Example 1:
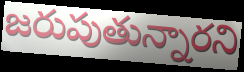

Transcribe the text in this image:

జరుపుతున్నారని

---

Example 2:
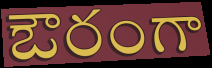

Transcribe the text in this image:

ఔరంగా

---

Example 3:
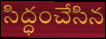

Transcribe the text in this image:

సిద్ధంచేసిన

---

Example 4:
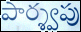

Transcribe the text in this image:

పార్శ్వపు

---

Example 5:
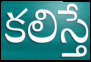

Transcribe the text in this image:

కలిస్తే